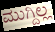
ಮುಗ್ದಿಲ್ಲ